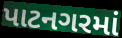
પાટનગરમાં